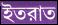
ইতরাত